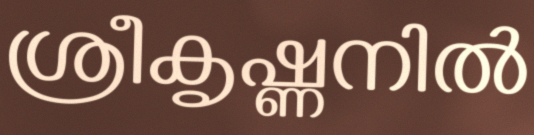
ശ്രീകൃഷ്ണനിൽ